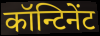
कॉन्टिनेंट